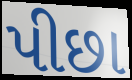
પીછા